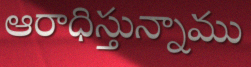
ఆరాధిస్తున్నాము